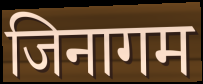
जिनागम